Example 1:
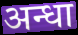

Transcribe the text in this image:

अन्धा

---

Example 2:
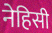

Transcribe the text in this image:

नेहिसी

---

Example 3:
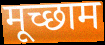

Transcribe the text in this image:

मूच्छाम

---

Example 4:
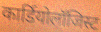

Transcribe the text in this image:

कार्डियोलॉजिस्ट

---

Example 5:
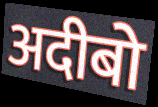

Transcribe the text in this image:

अदीबो